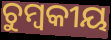
ଚୁମ୍ବକୀୟ